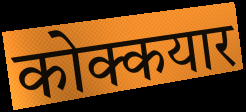
कोक्कयार